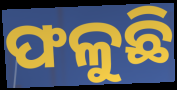
ଫଳୁଛି